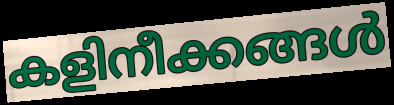
കളിനീക്കങ്ങൾ